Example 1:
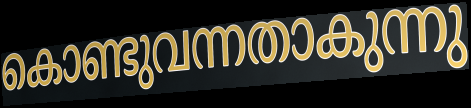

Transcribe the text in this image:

കൊണ്ടുവന്നതാകുന്നു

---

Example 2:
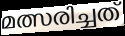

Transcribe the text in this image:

മത്സരിച്ചത്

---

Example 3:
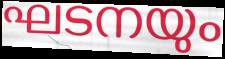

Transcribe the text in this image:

ഘടനയും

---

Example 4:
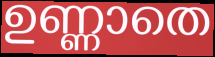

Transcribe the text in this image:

ഉണ്ണാതെ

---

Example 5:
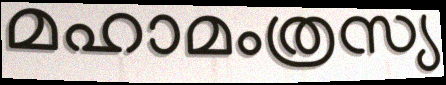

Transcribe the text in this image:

മഹാമംത്രസ്യ